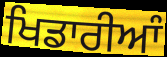
ਖਿਡਾਰੀਆੰ